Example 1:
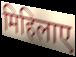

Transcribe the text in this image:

मिहिलाए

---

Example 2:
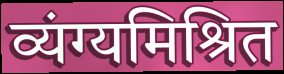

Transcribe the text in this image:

व्यंग्यमिश्रित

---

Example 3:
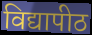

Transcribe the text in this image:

विद्यापीठ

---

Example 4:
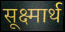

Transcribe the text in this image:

सूक्ष्मार्थ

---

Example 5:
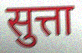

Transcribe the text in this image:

सुत्ता